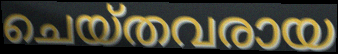
ചെയ്തവരായ